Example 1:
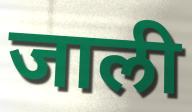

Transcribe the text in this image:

जाली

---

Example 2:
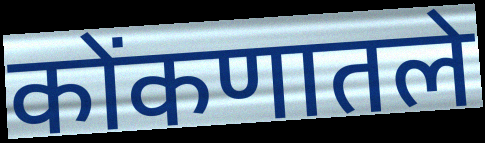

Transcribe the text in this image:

कोंकणातले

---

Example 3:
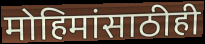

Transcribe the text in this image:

मोहिमांसाठीही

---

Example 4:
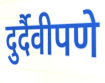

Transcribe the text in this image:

दुर्दैवीपणे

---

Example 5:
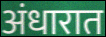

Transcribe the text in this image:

अंधारात